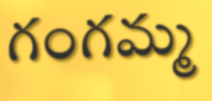
గంగమ్మ